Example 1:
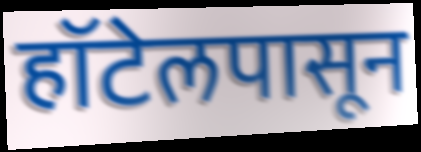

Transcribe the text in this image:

हॉटेलपासून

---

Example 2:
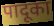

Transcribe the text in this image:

पादूका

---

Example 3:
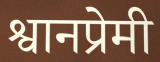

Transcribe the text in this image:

श्वानप्रेमी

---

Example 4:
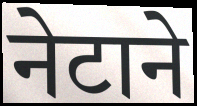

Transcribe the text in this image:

नेटाने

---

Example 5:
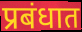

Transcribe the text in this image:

प्रबंधात